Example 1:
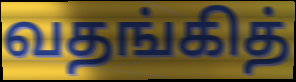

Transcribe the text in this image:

வதங்கித்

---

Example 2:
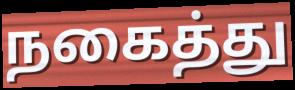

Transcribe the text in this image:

நகைத்து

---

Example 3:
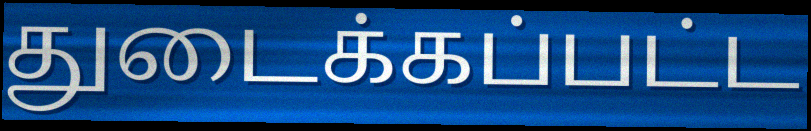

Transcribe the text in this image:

துடைக்கப்பட்ட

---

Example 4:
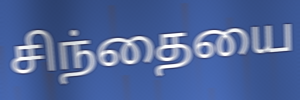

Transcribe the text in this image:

சிந்தையை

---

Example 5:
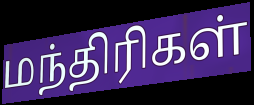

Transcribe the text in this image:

மந்திரிகள்